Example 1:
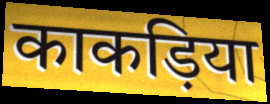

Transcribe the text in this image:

काकड़िया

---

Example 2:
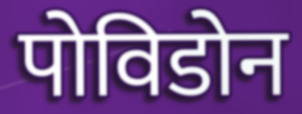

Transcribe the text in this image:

पोविडोन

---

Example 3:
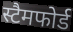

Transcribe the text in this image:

स्टैमफोर्ड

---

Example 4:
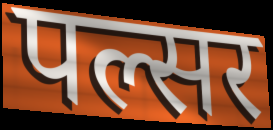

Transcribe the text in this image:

पल्सर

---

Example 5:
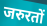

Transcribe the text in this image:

जरुरतों